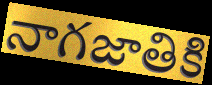
నాగజాతికి